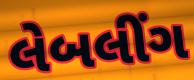
લેબલીંગ